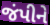
જંપીને